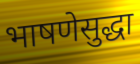
भाषणेसुद्धा